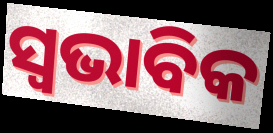
ସ୍ୱଭାବିକ